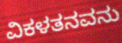
ವಿಕಳತನವನು